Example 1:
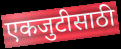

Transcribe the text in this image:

एकजुटीसाठी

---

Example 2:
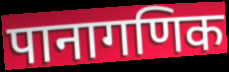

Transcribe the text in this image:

पानागणिक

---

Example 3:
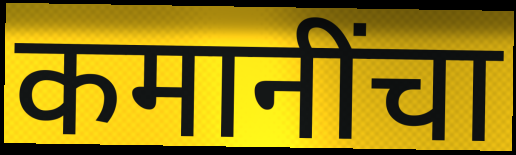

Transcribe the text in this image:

कमानींचा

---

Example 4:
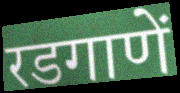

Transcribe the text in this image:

रडगाणें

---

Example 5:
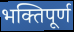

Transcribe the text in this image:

भक्तिपूर्ण